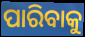
ପାରିବାକୁ